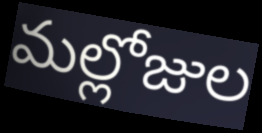
మల్లోజుల